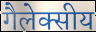
गैलेक्सीय